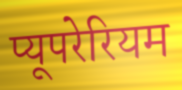
प्यूपरेरियम